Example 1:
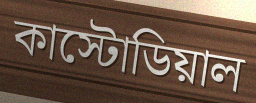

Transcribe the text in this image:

কাস্টোডিয়াল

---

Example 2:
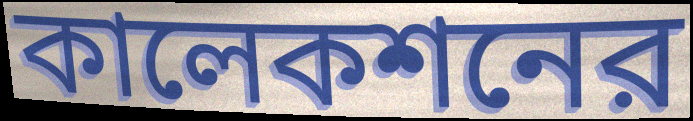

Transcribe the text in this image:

কালেকশনের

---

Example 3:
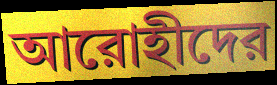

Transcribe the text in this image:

আরোহীদের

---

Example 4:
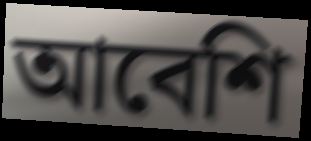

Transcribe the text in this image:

আবেশি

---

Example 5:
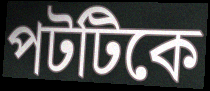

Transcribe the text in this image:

পটটিকে